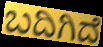
ಬದಿಗಿದೆ